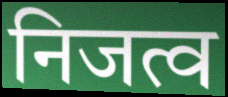
निजत्व